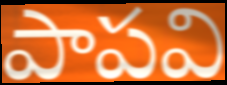
పాపవి